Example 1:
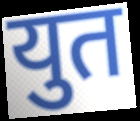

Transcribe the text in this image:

युत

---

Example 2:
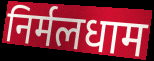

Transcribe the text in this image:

निर्मलधाम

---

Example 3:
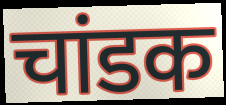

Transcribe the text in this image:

चांडक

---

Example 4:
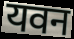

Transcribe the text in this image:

यवन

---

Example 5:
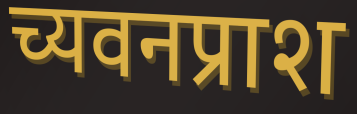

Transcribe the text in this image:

च्यवनप्राश